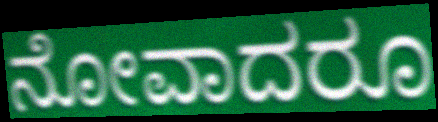
ನೋವಾದರೂ